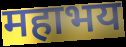
महाभय